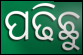
ପଢିଛୁ